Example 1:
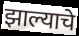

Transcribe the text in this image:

झाल्याचे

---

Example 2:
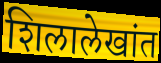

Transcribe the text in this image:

शिलालेखांत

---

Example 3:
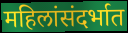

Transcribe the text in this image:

महिलांसंदर्भात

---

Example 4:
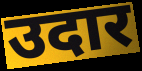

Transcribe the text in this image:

उदार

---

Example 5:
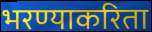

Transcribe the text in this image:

भरण्याकरिता